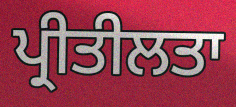
ਪ੍ਰੀਤੀਲਤਾ